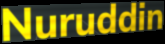
Nuruddin